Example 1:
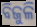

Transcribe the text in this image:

ବିଜୁଳି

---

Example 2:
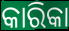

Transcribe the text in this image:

କାରିକା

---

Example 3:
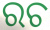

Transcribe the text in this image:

ରଚ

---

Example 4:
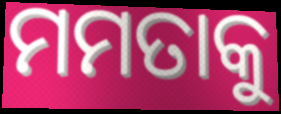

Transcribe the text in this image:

ମମତାକୁ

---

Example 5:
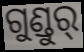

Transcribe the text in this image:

ଗୁଣ୍ଡୁର୍